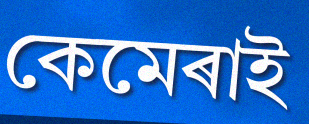
কেমেৰাই